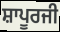
ਸ਼ਾਪੂਰਜੀ